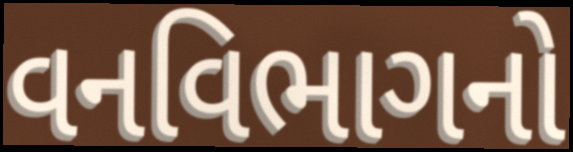
વનવિભાગનો